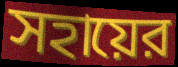
সহায়ের